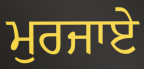
ਮੁਰਜਾਏ